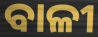
ବାଳୀ